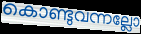
കൊണ്ടുവന്നല്ലോ